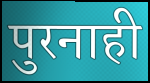
पुरनाही